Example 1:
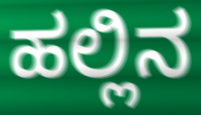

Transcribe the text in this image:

ಹಲ್ಲಿನ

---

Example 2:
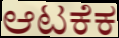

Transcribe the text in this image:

ಆಟಕೆಕ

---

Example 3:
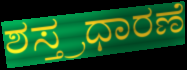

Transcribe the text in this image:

ಶಸ್ತ್ರಧಾರಣೆ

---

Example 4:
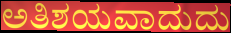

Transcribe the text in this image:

ಅತಿಶಯವಾದುದು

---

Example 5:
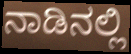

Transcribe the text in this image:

ನಾಡಿನಲ್ಲಿ